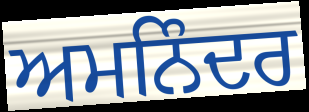
ਅਮਨਿੰਦਰ